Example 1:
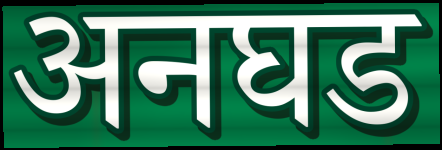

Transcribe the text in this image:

अनघड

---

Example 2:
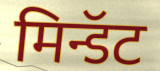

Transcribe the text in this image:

मिन्डॅट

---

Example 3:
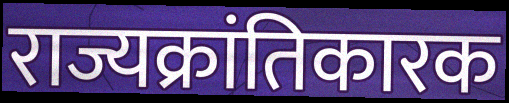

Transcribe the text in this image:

राज्यक्रांतिकारक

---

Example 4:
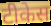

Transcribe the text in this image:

टीकेस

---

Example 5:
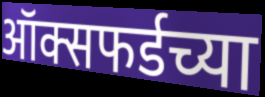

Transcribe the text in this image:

ऑक्सफर्डच्या